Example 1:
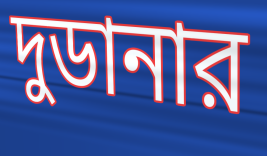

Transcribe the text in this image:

দুডানার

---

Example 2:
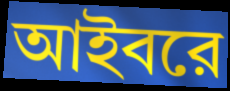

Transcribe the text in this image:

আইবরে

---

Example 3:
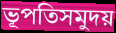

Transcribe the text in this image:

ভূপতিসমুদয়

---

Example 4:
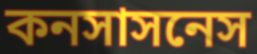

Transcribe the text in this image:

কনসাসনেস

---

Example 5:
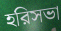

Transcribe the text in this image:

হরিসভা